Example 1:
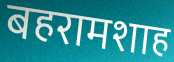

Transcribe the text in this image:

बहरामशाह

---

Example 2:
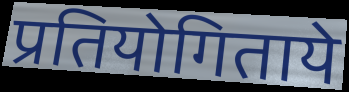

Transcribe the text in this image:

प्रतियोगिताये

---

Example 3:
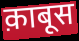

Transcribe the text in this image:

क़ाबूस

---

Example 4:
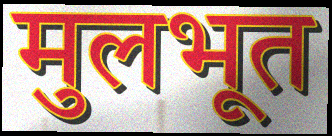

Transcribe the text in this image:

मुलभूत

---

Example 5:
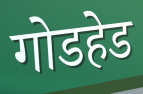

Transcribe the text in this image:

गोडहेड